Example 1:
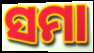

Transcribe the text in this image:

ସମା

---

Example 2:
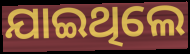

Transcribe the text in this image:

ଯାଇଥିଲେ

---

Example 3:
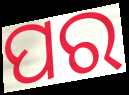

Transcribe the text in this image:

ପର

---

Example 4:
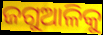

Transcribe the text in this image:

ଜଗୁଆଳିକୁ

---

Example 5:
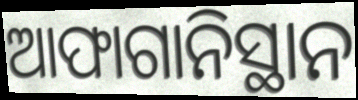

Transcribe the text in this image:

ଆଫାଗାନିସ୍ଥାନ